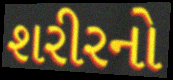
શરીરનો